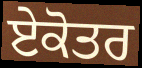
ਏਕੋਤਰ